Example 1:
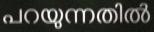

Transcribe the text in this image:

പറയുന്നതിൽ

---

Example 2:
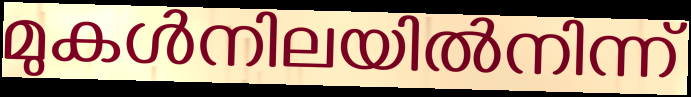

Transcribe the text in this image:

മുകൾനിലയിൽനിന്ന്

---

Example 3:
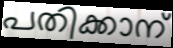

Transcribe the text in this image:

പതിക്കാന്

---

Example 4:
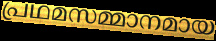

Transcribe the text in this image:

പ്രഥമസമ്മാനമായ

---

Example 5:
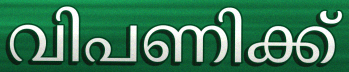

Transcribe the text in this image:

വിപണിക്ക്